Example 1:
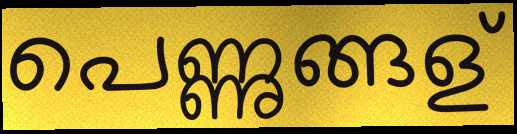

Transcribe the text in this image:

പെണ്ണുങ്ങള്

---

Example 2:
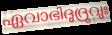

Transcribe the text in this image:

ഏവാഭിദുദ്രുവുഃ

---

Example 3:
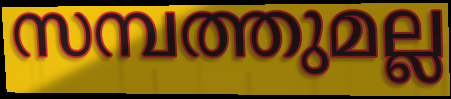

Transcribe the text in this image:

സമ്പത്തുമല്ല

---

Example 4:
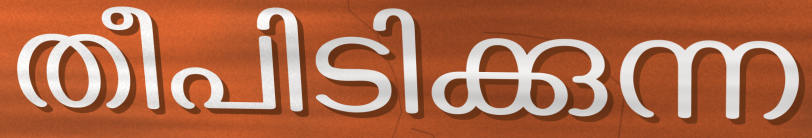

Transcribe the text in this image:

തീപിടിക്കുന്ന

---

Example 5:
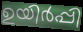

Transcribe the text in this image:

ഉയിർപ്പി